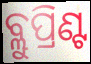
ବ୍ଲୁପ୍ରିଣ୍ଟ